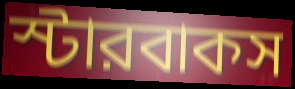
স্টারবাকস